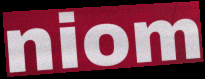
niom